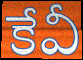
కేవీ